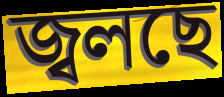
জ্বলছে